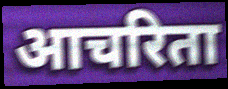
आचरिता